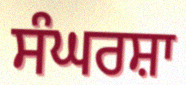
ਸੰਘਰਸ਼ਾ